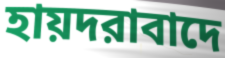
হায়দরাবাদে